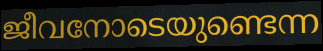
ജീവനോടെയുണ്ടെന്ന